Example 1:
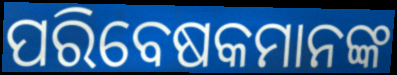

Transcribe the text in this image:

ପରିବେଷକମାନଙ୍କ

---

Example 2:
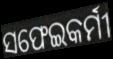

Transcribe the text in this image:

ସଫେଇକର୍ମୀ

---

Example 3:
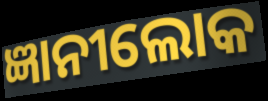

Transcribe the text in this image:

ଜ୍ଞାନୀଲୋକ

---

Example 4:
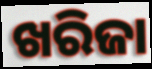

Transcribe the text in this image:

ଖରିଜା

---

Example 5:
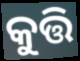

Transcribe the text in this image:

କୁତ୍ତି